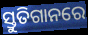
ସ୍ତୁତିଗାନରେ